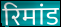
रिमांड